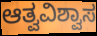
ಆತ್ವವಿಶ್ವಾಸ